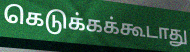
கெடுக்கக்கூடாது